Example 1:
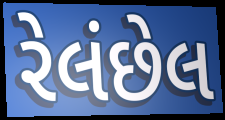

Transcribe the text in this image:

રેલંછેલ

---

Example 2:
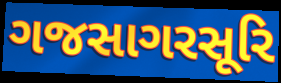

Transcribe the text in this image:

ગજસાગરસૂરિ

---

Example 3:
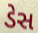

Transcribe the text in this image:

ડેસ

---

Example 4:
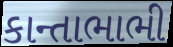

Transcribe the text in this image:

કાન્તાભાભી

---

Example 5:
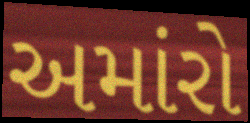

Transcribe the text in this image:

અમાંરો